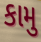
કામુ